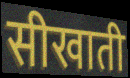
सीखाती